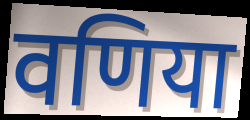
वणिया